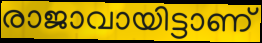
രാജാവായിട്ടാണ്